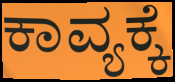
ಕಾವ್ಯಕ್ಕೆ